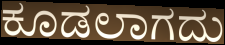
ಕೂಡಲಾಗದು